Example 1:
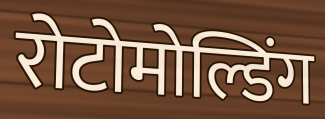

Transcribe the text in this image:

रोटोमोल्डिंग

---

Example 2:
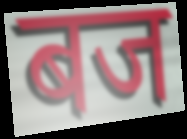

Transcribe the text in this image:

बज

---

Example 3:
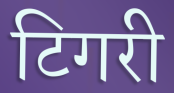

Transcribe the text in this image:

टिगरी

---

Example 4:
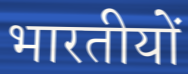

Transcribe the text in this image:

भारतीयों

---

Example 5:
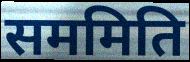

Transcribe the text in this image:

सममिति